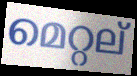
മെറ്റല്